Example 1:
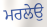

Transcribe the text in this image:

ਮਰਲੇਉ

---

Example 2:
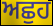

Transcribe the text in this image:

ਅਛੁਹ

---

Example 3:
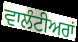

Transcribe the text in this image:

ਵਾਲੰਟੀਅਰਾਂ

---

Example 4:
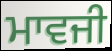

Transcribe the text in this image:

ਮਾਵਜੀ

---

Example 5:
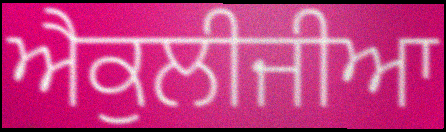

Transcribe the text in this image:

ਐਕੁਲੀਜੀਆ